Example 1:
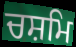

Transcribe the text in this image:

ਚਸ਼ਮਿ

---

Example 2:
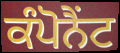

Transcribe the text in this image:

ਕੰਪੋਨੈਂਟ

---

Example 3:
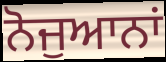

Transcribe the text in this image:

ਨੋਜੁਆਨਾਂ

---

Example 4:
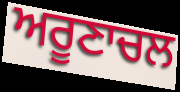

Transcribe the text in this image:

ਅਰੂਣਾਚਲ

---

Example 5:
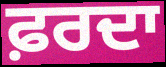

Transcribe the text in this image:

ਫ਼ਰਦਾ